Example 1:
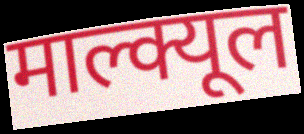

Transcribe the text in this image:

माल्क्यूल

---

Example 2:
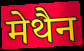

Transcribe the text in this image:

मेथैन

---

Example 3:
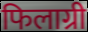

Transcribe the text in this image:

फिलाग्री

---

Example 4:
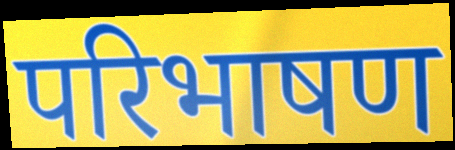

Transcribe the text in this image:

परिभाषण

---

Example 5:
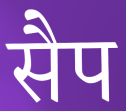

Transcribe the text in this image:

सैप